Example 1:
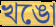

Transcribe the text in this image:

খঙো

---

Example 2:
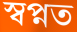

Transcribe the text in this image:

স্বপ্নত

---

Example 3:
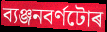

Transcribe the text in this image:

ব্যঞ্জনবৰ্ণটোৰ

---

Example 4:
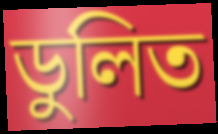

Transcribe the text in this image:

ডুলিত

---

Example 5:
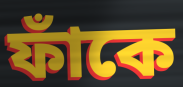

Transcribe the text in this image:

ফাঁকে